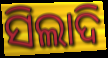
ସିଲାଦି